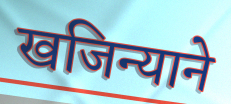
खजिन्याने